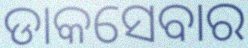
ଡାକସେବାର